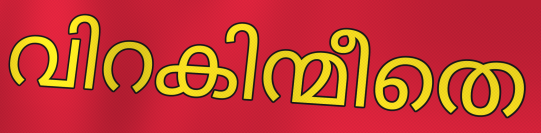
വിറകിന്മീതെ